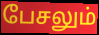
பேசலும்